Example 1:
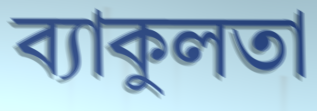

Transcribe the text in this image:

ব্যাকুলতা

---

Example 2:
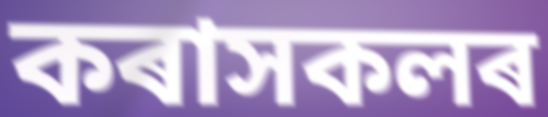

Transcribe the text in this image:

কৰাসকলৰ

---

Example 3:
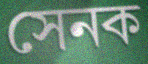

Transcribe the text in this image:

সেনক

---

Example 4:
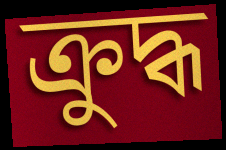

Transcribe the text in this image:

ক্ৰুদ্ধ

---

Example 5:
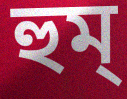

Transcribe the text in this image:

হুম্